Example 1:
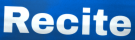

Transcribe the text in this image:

Recite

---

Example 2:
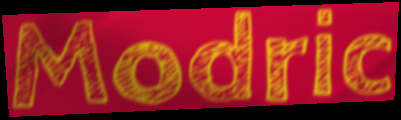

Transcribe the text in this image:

Modric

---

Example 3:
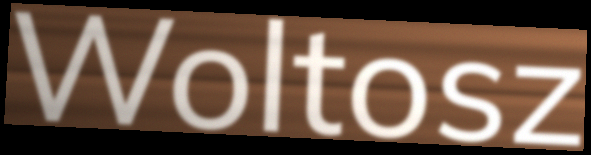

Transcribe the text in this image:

Woltosz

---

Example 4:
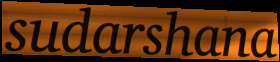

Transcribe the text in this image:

sudarshana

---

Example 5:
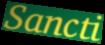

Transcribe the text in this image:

Sancti